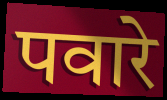
पवारे